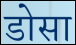
डोसा